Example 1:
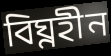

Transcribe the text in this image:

বিঘ্নহীন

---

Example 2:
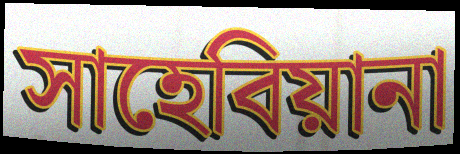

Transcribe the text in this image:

সাহেবিয়ানা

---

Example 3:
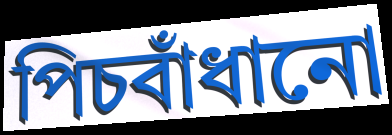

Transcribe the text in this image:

পিচবাঁধানো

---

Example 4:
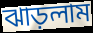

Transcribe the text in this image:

ঝাড়লাম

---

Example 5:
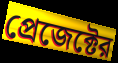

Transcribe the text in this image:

প্রেজেক্টের